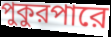
পুকুরপারে